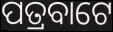
ପତ୍ରବାଟେ